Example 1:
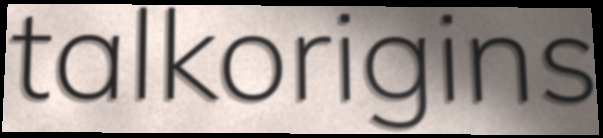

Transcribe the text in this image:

talkorigins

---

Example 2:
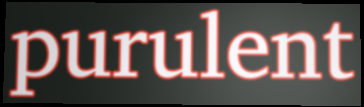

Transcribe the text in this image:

purulent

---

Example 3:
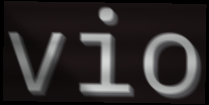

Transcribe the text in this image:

vio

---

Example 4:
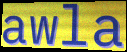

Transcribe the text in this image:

awla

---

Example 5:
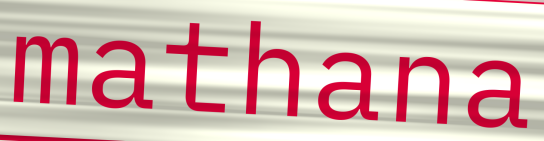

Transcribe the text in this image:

mathana